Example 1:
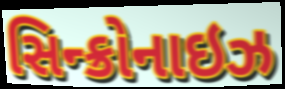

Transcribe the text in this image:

સિન્ક્રોનાઇઝ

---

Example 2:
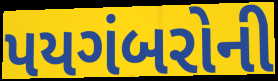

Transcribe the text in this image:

પયગંબરોની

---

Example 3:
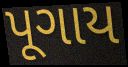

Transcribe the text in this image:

પૂગાય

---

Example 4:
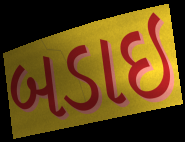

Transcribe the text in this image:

બડાઇ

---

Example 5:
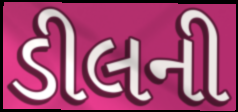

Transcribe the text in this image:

ડીલની